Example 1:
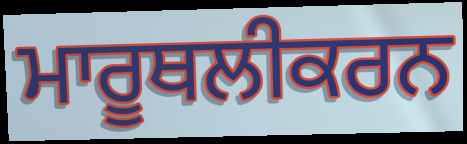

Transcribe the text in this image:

ਮਾਰੂਥਲੀਕਰਨ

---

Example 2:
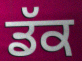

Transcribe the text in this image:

ਡੱਕ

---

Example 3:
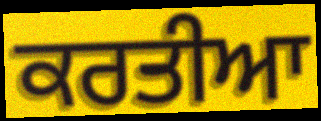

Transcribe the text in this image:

ਕਰਤੀਆ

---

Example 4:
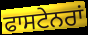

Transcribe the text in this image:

ਫਾਸਟੇਨਰਾਂ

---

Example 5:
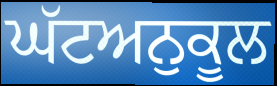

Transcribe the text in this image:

ਘੱਟਅਨੁਕੂਲ